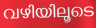
വഴിയിലൂടെ